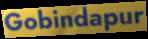
Gobindapur